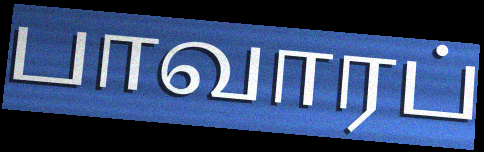
பாவாரப்